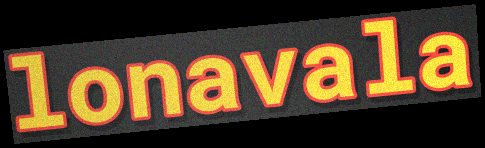
lonavala